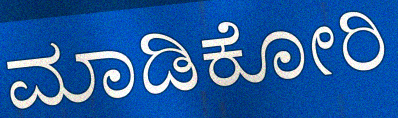
ಮಾಡಿಕೋರಿ